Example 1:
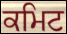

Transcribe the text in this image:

ਕਮਿਟ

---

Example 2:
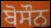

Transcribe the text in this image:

ਬੋਸੌਨ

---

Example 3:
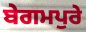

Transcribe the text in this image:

ਬੇਗਮਪੁਰੇ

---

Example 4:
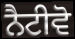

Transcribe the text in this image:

ਨੈਟੀਵੋ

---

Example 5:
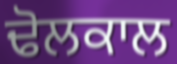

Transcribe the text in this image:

ਢੋਲਕਾਲ